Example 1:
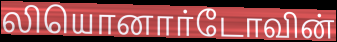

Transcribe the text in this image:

லியொனார்டோவின்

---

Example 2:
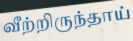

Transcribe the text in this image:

வீற்றிருந்தாய்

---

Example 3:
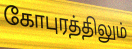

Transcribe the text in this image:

கோபுரத்திலும்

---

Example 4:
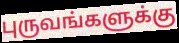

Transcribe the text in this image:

புருவங்களுக்கு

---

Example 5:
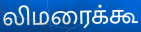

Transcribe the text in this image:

லிமரைக்கூ